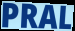
PRAL